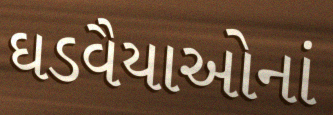
ઘડવૈયાઓનાં